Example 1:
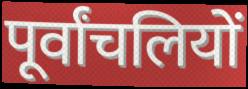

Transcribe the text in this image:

पूर्वांचलियों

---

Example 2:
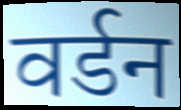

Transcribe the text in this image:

वर्डन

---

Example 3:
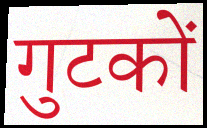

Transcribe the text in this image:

गुटकों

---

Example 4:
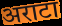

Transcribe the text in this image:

अराटा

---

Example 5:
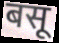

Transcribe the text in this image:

बसू